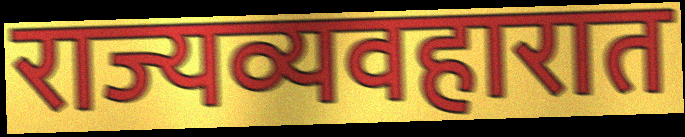
राज्यव्यवहारात